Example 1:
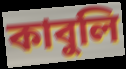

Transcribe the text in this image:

কাবুলি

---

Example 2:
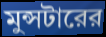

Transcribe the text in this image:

মুন্সটারের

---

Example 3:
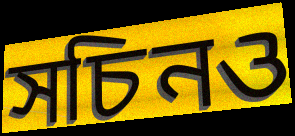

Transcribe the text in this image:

সচিনও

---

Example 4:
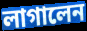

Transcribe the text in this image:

লাগালেন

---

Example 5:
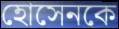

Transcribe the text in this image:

হোসেনকে